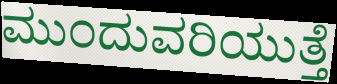
ಮುಂದುವರಿಯುತ್ತೆ